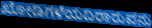
ಖೋಡಿಗಳೆಯದಿರಾರುವನು